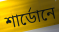
শার্ডোনে